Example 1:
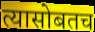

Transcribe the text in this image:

त्यासोबतच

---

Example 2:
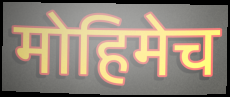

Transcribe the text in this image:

मोहिमेच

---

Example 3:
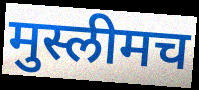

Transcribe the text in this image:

मुस्लीमच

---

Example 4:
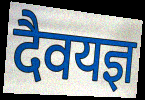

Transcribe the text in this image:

दैवयज्ञ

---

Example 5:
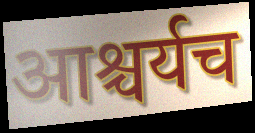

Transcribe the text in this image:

आश्चर्यच